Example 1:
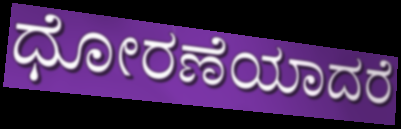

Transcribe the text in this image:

ಧೋರಣೆಯಾದರೆ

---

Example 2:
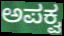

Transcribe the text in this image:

ಅಪಕ್ವ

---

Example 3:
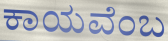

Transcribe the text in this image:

ಕಾಯವೆಂಬ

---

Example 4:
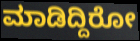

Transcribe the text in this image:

ಮಾಡಿದ್ದಿರೋ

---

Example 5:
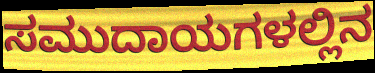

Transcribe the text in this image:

ಸಮುದಾಯಗಳಲ್ಲಿನ